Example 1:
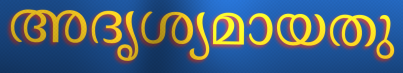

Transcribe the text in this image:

അദൃശ്യമായതു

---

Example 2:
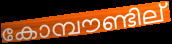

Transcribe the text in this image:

കോമ്പൗണ്ടില്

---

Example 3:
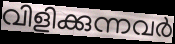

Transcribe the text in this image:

വിളിക്കുന്നവർ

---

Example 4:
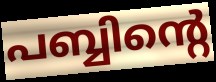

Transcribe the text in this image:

പബ്ബിന്റെ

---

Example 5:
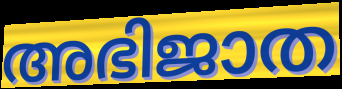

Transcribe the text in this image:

അഭിജാത